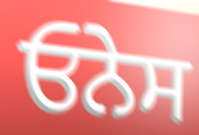
ਓਨੇਸ